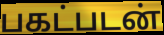
பகட்படன்